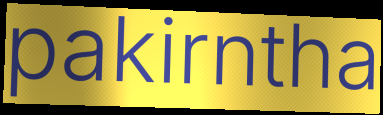
pakirntha